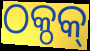
ଠକ୍ଠକ୍